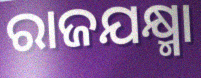
ରାଜଯକ୍ଷ୍ମା